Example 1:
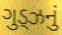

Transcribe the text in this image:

ગુડ્ઝનું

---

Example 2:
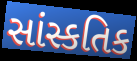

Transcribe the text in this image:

સાંસ્કતિક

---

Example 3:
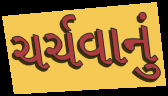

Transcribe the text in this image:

ચર્ચવાનું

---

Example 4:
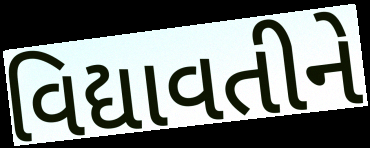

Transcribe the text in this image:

વિદ્યાવતીને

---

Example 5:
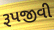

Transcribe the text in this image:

રૂપજીવી